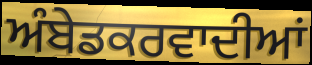
ਅੰਬੇਡਕਰਵਾਦੀਆਂ